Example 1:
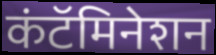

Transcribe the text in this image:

कंटॅमिनेशन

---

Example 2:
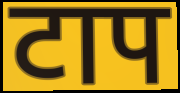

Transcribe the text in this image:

टाप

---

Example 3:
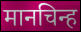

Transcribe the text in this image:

मानचिन्ह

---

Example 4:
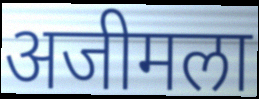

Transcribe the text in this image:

अजीमला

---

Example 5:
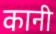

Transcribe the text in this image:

कानी